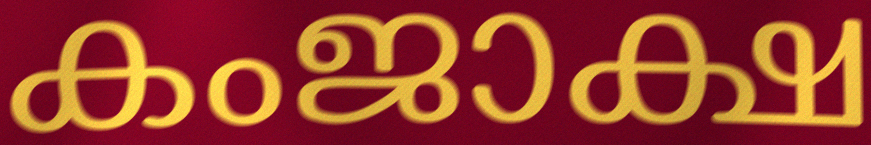
കംജാക്ഷ